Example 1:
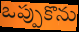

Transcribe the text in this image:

ఒప్పుకొను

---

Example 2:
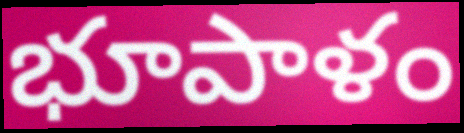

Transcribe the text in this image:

భూపాళం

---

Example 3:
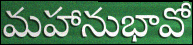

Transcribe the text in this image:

మహానుభావో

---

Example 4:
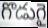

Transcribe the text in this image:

గొడుగై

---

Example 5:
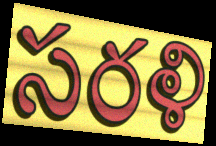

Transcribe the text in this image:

సరళి